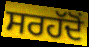
ਸਰਹੱਦੋਂ